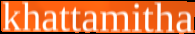
khattamitha